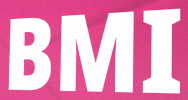
BMI